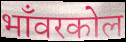
भाँवरकोल